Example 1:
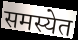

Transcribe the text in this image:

समस्येत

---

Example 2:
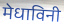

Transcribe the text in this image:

मेधाविनी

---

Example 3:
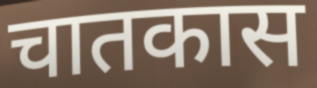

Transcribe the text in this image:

चातकास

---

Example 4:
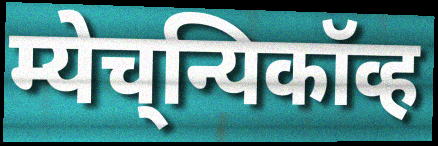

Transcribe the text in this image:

म्येच्‌न्यिकॉव्ह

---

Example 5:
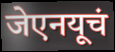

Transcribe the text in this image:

जेएनयूचं